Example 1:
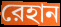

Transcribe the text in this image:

রেহান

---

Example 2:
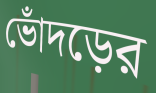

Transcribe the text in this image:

ভোঁদড়ের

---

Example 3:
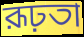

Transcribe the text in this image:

রূঢ়তা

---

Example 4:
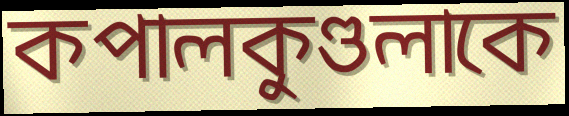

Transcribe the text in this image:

কপালকুণ্ডলাকে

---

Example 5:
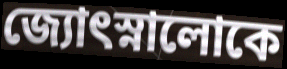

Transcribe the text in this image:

জ্যোৎস্নালোকে